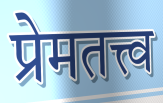
प्रेमतत्त्व